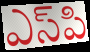
ఎస్‌పి